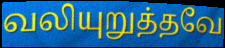
வலியுறுத்தவே